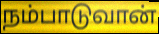
நம்பாடுவான்